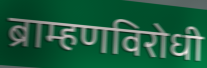
ब्राम्हणविरोधी